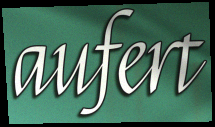
aufert